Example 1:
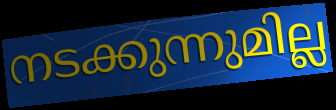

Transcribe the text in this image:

നടക്കുന്നുമില്ല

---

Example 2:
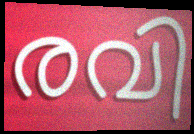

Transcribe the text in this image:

രവി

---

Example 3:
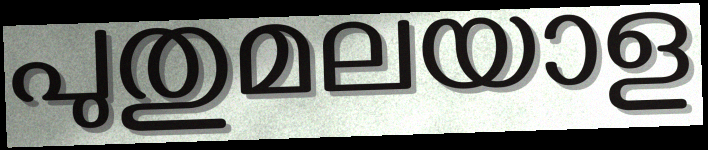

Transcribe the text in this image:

പുതുമലയാള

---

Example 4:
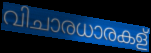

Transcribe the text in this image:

വിചാരധാരകള്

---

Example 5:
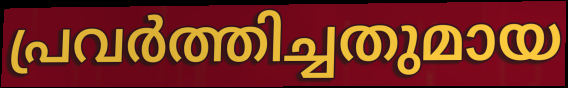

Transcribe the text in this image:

പ്രവർത്തിച്ചതുമായ